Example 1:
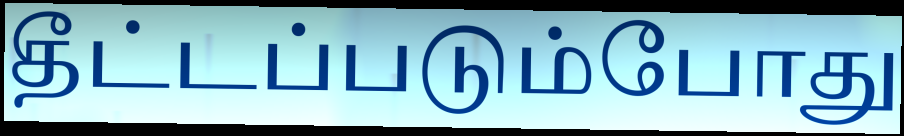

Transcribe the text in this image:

தீட்டப்படும்போது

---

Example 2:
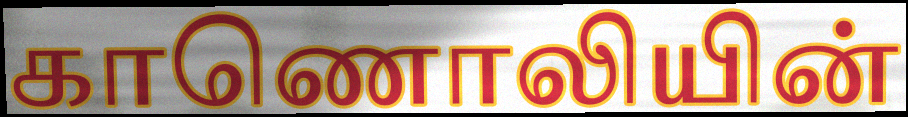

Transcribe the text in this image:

காணொலியின்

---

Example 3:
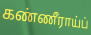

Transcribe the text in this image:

கண்ணீராய்ப்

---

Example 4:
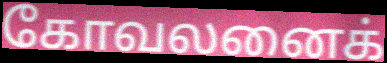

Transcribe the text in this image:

கோவலனைக்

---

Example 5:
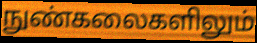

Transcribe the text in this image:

நுண்கலைகளிலும்